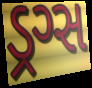
ડ્રગ્સ